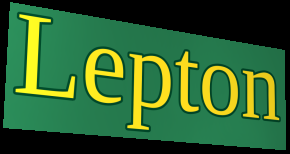
Lepton